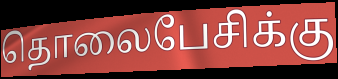
தொலைபேசிக்கு